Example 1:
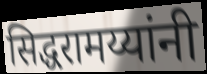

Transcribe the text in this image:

सिद्धरामय्यांनी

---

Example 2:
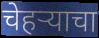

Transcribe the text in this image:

चेहर्‍याचा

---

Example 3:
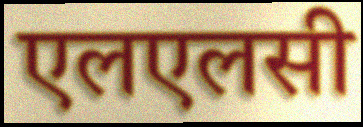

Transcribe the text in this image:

एलएलसी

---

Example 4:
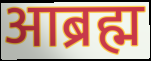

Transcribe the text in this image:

आब्रह्म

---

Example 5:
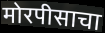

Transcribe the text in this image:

मोरपीसाचा